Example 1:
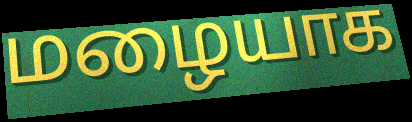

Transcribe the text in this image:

மழையாக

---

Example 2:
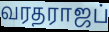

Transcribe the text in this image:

வரதராஜப்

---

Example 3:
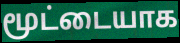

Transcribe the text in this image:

மூட்டையாக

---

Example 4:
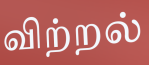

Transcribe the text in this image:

விற்றல்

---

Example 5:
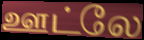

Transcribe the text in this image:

ஊட்லே